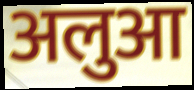
अलुआ